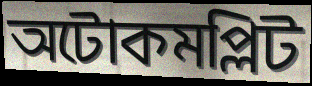
অটোকমপ্লিট